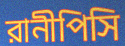
রানীপিসি